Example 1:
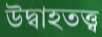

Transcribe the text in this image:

উদ্বাহতত্ত্ব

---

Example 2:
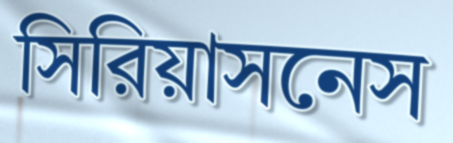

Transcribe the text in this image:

সিরিয়াসনেস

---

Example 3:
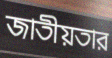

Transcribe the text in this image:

জাতীয়তার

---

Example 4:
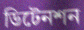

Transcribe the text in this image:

ডিটেনশন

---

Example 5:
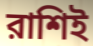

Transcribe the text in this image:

রাশিই